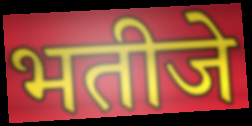
भतीजे